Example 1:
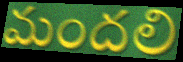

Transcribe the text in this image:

మందలి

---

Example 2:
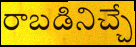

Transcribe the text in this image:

రాబడినిచ్చే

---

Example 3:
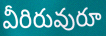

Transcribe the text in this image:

వీరిరువురూ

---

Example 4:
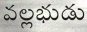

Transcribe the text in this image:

వల్లభుడు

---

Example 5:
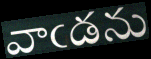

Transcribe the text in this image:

వాఁడను